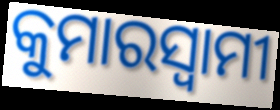
କୁମାରସ୍ୱାମୀ